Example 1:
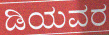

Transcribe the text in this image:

ಡಿಯವರ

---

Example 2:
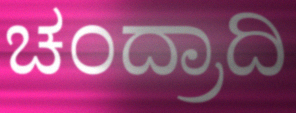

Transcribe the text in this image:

ಚಂದ್ರಾದಿ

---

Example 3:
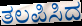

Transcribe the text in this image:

ತಲಪಿಸಿದ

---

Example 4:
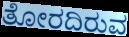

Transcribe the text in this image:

ತೋರದಿರುವ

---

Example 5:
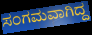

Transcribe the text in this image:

ಸಂಗಮವಾಗಿದ್ದ